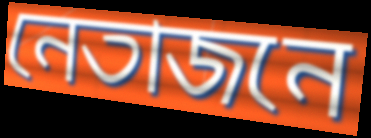
নেতাজনে